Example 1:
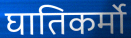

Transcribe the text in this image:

घातिकर्मो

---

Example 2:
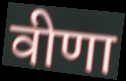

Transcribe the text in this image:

वीणा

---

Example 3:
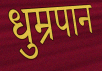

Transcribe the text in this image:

धुम्रपान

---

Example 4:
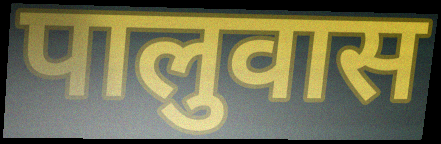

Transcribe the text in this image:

पालुवास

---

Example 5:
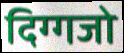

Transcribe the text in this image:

दिग्गजो